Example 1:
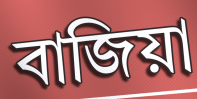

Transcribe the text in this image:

বাজিয়া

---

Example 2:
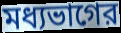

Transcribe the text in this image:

মধ্যভাগের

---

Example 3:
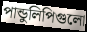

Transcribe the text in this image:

পান্ডুলিপিগুলো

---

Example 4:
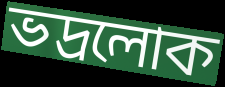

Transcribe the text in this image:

ভদ্রলোক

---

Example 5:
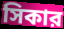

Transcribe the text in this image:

সিকার